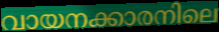
വായനക്കാരനിലെ